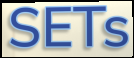
SETs